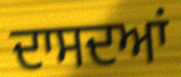
ਦਾਸਦਆਂ